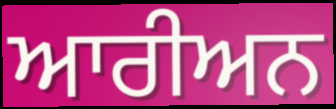
ਆਰੀਅਨ